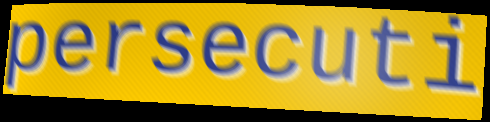
persecuti